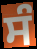
ਸੰ